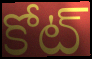
కోట్